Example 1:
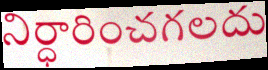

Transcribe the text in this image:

నిర్ధారించగలదు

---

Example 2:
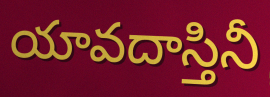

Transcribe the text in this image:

యావదాస్తినీ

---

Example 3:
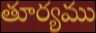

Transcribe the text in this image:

తూర్యము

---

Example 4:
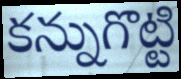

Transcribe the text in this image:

కన్నుగొట్టి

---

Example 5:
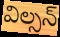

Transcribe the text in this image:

విల్సన్